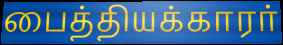
பைத்தியக்காரர்